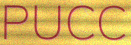
PUCC